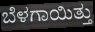
ಬೆಳಗಾಯಿತ್ತು